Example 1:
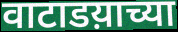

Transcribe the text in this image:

वाटाडय़ाच्या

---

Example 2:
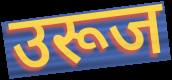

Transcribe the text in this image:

उरूज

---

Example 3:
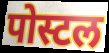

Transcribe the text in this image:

पोस्टल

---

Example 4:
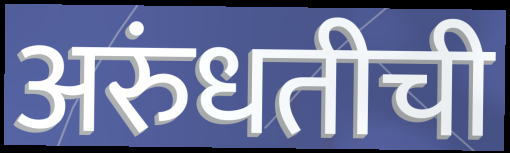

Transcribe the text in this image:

अरुंधतीची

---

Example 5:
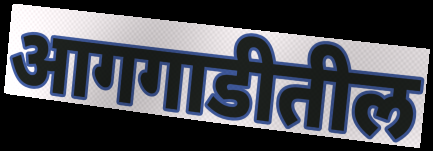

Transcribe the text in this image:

आगगाडीतील